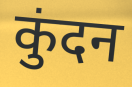
कुंदन